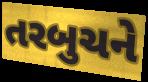
તરબુચને